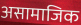
असामाजिक